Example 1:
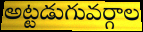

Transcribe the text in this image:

అట్టడుగువర్గాల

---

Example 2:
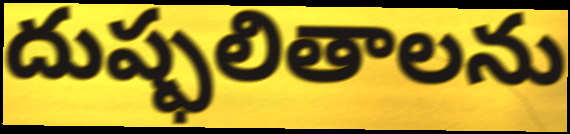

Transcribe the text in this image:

దుష్ఫలితాలను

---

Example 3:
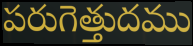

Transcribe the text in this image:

పరుగెత్తుదము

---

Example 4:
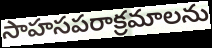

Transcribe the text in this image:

సాహసపరాక్రమాలను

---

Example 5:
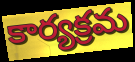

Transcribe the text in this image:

కార్యక్రమ